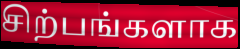
சிற்பங்களாக